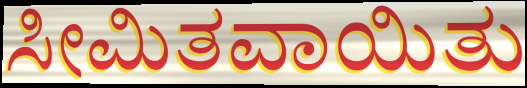
ಸೀಮಿತವಾಯಿತು